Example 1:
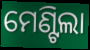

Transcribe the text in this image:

ମେଣ୍ଟିଲା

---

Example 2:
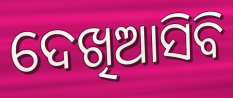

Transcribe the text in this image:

ଦେଖିଆସିବି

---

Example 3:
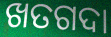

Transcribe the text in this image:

ଖତଗଦା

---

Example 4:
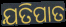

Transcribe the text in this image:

ଯତିପାତ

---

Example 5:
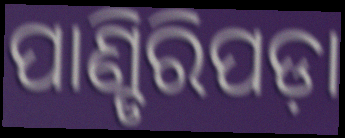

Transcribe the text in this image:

ପାଣ୍ଡିରିପଡ଼ା